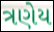
ત્રણેય